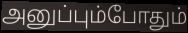
அனுப்பும்போதும்